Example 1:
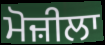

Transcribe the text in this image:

ਮੋਜ਼ੀਲਾ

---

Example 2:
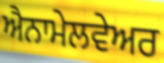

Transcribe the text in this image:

ਐਨਾਮੇਲਵੇਅਰ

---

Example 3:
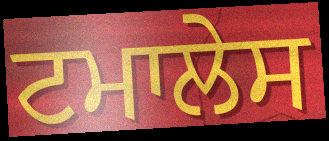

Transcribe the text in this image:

ਟਮਾਲੇਸ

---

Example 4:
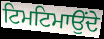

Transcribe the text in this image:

ਟਿਮਟਿਮਾਉਂਦੇ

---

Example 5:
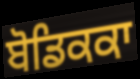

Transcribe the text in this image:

ਬੋਡਿਕਕਾ